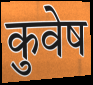
कुवेष